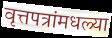
वृत्तपत्रांमधल्या